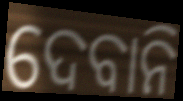
ଦେବାନି